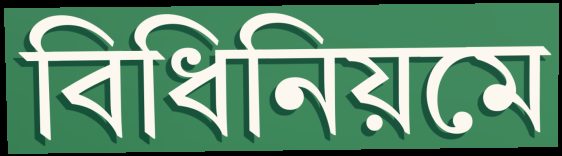
বিধিনিয়মে